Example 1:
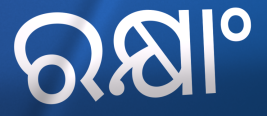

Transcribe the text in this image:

ରକ୍ଷାଂ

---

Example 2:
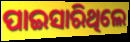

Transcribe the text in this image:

ପାଇସାରିଥିଲେ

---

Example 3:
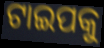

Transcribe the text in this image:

ଟାଇପକୁ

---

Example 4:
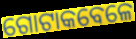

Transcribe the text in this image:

ଗୋଟାକବେଳେ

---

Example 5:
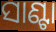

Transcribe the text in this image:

ସାଣ୍ଟା